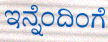
ಇನ್ನೆಂದಿಂಗೆ